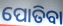
ପୋତିବା